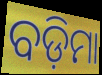
ବଡ଼ିମା